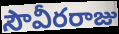
సౌవీరరాజు